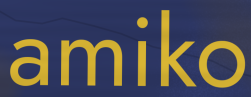
amiko